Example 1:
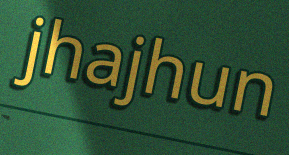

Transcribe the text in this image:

jhajhun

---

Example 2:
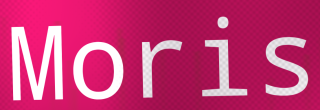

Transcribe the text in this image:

Moris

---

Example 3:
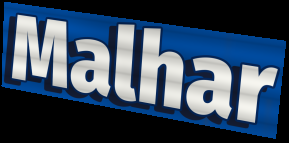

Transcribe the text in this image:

Malhar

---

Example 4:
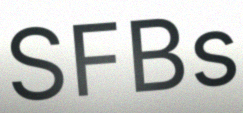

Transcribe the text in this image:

SFBs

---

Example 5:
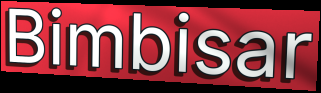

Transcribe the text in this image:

Bimbisar